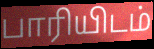
பாரியிடம்